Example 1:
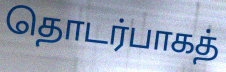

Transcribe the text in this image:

தொடர்பாகத்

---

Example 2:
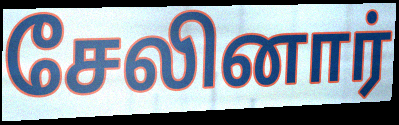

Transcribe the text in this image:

சேலினார்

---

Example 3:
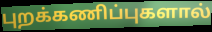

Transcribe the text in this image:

புறக்கணிப்புகளால்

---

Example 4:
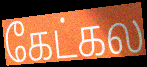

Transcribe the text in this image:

கேட்கல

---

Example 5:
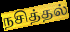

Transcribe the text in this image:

நசித்தல்